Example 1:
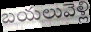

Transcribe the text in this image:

బయలువెళ్లి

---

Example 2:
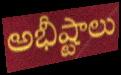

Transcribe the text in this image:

అభీష్టాలు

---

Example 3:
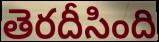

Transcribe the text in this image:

తెరదీసింది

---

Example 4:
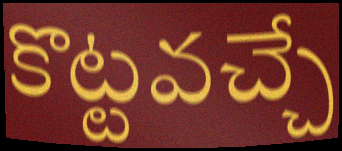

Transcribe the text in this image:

కొట్టవచ్చే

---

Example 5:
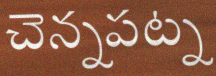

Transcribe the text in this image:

చెన్నపట్న